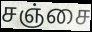
சஞ்சை